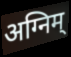
अग्निम्